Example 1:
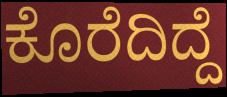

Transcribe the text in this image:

ಕೊರೆದಿದ್ದೆ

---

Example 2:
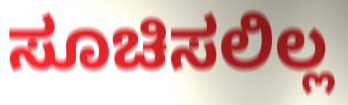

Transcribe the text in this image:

ಸೂಚಿಸಲಿಲ್ಲ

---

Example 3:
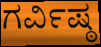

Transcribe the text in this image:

ಗರ್ವಿಷ್ಠ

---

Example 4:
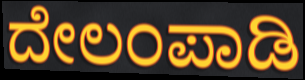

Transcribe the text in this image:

ದೇಲಂಪಾಡಿ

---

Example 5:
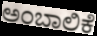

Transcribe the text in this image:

ಅಂಬಾಲಿಕೆ